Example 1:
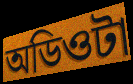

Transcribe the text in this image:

অডিওটা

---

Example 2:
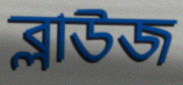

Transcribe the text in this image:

ব্লাউজ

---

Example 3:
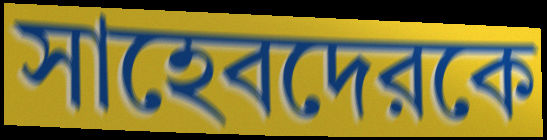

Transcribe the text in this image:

সাহেবদেরকে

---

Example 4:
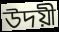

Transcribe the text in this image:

উদয়ী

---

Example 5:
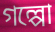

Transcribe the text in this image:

গল্পো